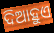
ଦିଆହୁଏ